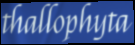
thallophyta